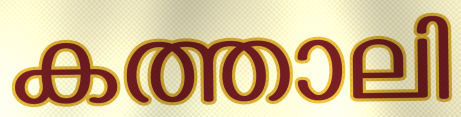
കത്താലി